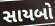
સાયબો